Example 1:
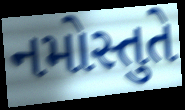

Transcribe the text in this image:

નમોસ્તુતે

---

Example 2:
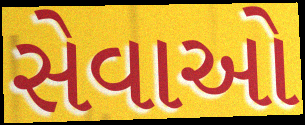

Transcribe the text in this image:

સેવાઓ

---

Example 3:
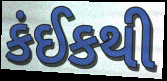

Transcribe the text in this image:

કંઈકથી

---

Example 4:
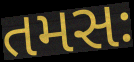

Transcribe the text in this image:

તમસઃ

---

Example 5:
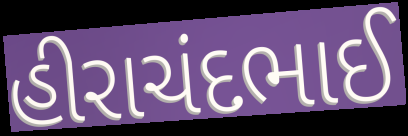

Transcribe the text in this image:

હીરાચંદભાઈ